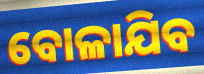
ବୋଳାଯିବ